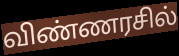
விண்ணரசில்